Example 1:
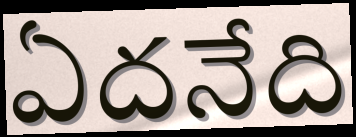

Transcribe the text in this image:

ఏదనేది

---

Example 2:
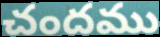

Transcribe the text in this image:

చందము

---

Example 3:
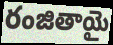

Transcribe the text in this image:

రంజితాయై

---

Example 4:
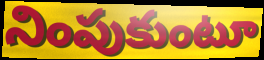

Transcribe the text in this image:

నింపుకుంటూ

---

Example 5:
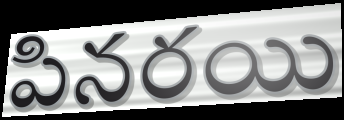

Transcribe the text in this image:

పినరయి